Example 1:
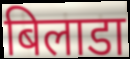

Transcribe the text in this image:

बिलाडा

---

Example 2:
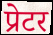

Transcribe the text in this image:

प्रेटर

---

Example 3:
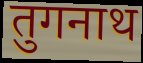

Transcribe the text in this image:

तुगनाथ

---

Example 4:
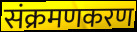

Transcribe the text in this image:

संक्रमणकरण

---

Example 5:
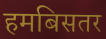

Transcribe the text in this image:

हमबिसतर